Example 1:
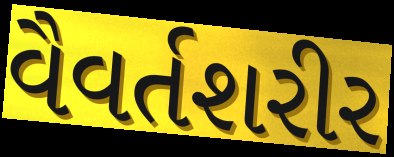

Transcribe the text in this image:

વૈવર્તશરીર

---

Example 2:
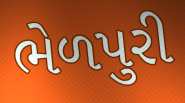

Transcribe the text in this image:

ભેળપુરી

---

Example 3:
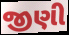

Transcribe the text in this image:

જીણી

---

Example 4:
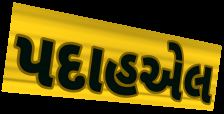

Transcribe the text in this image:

પદાહએલ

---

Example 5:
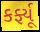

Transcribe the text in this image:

કર્ફ્યૂ